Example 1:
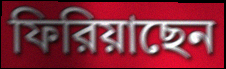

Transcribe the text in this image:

ফিরিয়াছেন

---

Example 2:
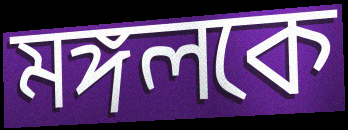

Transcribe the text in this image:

মঙ্গলকে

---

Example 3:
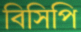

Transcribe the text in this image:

বিসিপি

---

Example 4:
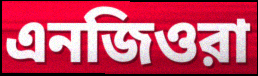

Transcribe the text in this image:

এনজিওরা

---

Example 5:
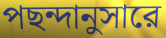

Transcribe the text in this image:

পছন্দানুসারে